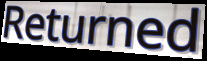
Returned